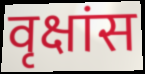
वृक्षांस